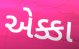
એક્કા